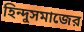
হিন্দুসমাজের